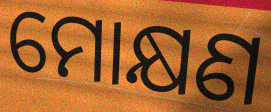
ମୋକ୍ଷଣ